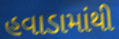
હવાડામાંથી